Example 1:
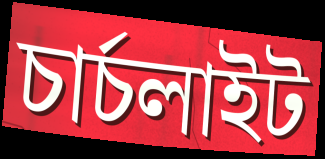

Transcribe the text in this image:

চাৰ্চলাইট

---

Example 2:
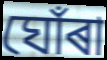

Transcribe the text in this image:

ঘোঁৰা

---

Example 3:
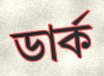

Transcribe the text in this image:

ডাৰ্ক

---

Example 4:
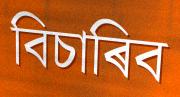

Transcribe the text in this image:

বিচাৰিব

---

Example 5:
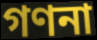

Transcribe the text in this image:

গণনা